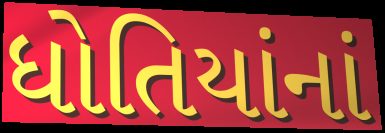
ધોતિયાંનાં